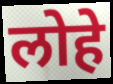
लोहे